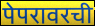
पेपरावरची